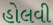
હોલવી